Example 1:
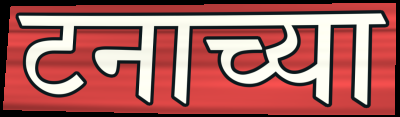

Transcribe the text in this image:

टनाच्या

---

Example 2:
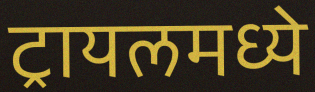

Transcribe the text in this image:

ट्रायलमध्ये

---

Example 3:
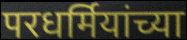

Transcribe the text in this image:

परधर्मियांच्या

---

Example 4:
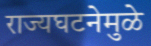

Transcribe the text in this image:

राज्यघटनेमुळे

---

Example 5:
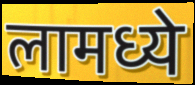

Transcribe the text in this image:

लामध्ये